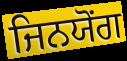
ਜਿਨਯੋਂਗ